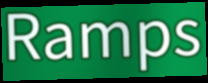
Ramps